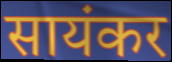
सायंकर